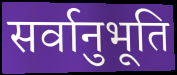
सर्वानुभूति